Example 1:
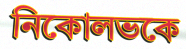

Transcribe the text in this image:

নিকোলভকে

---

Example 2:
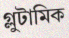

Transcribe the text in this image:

গ্লুটামিক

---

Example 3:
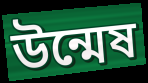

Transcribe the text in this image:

উন্মেষ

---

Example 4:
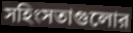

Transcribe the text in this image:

সহিংসতাগুলোর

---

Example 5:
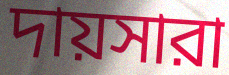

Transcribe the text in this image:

দায়সারা